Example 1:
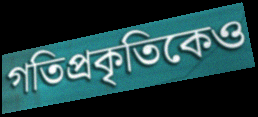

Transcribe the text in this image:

গতিপ্রকৃতিকেও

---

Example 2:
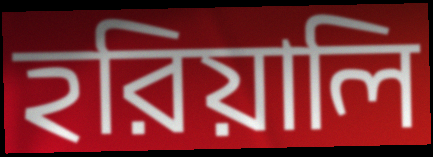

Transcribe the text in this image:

হরিয়ালি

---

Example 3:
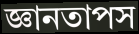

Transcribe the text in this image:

জ্ঞানতাপস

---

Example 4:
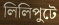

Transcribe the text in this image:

লিলিপুটে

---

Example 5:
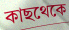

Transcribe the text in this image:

কাছথেকে